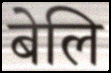
बेलि